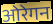
ओरेगन